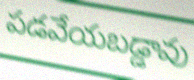
పడవేయబడ్డావు